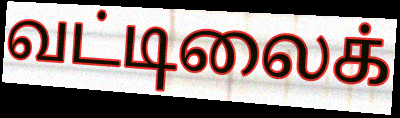
வட்டிலைக்